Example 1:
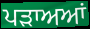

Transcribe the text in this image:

ਪੜਾਅਆਂ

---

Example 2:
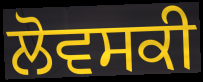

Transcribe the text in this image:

ਲੋਵਸਕੀ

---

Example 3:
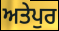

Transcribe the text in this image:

ਅਤੇਪੁਰ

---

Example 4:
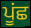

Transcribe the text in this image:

ਪੂਂਛ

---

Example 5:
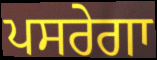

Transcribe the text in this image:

ਪਸਰੇਗਾ